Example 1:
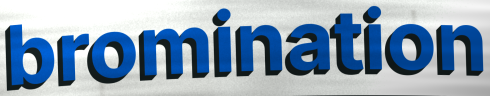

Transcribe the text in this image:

bromination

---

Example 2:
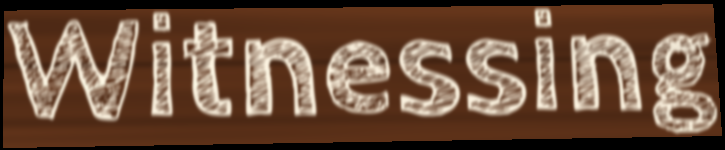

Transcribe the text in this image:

Witnessing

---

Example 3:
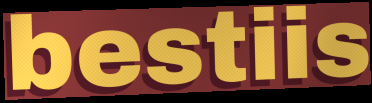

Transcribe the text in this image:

bestiis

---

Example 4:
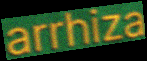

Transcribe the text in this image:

arrhiza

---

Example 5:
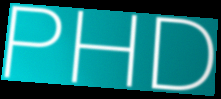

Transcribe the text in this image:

PHD